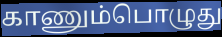
காணும்பொழுது